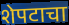
शेपटाचा